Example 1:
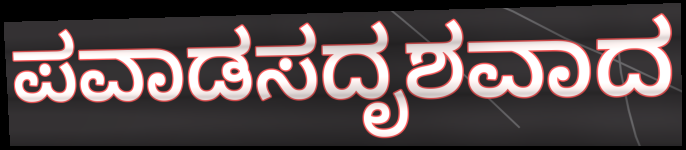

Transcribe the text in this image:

ಪವಾಡಸದೃಶವಾದ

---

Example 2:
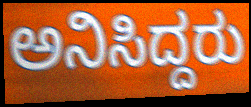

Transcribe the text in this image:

ಅನಿಸಿದ್ದರು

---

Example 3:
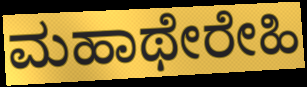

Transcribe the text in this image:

ಮಹಾಥೇರೇಹಿ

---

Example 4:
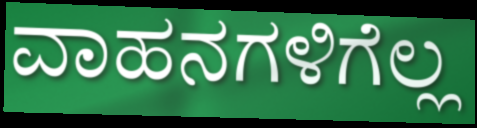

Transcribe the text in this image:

ವಾಹನಗಳಿಗೆಲ್ಲ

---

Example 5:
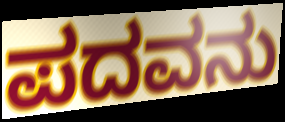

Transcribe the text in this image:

ಪದವನು